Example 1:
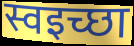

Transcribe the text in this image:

स्वइच्छा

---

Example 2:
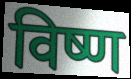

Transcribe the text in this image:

विष्ण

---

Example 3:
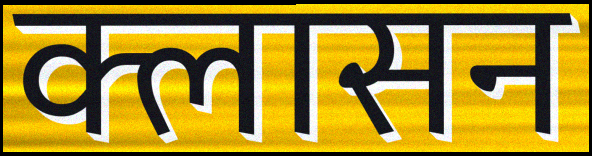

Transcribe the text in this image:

क्लासन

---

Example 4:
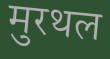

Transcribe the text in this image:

मुरथल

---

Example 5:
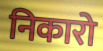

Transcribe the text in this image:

निकारो